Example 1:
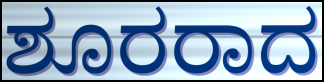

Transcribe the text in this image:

ಶೂರರಾದ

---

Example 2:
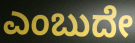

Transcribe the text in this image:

ಎಂಬುದೇ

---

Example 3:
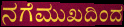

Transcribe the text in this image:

ನಗೆಮುಖದಿಂದ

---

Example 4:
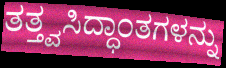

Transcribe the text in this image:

ತತ್ತ್ವಸಿದ್ಧಾಂತಗಳನ್ನು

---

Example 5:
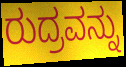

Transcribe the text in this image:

ರುದ್ರವನ್ನು